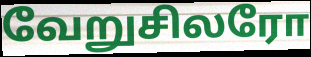
வேறுசிலரோ